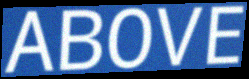
ABOVE